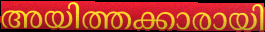
അയിത്തക്കാരായി